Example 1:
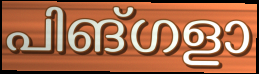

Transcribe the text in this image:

പിങ്ഗളാ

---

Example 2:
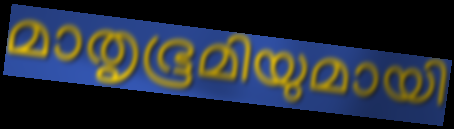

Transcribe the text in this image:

മാതൃഭൂമിയുമായി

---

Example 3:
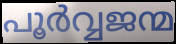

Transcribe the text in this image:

പൂർവ്വജന്മ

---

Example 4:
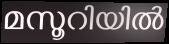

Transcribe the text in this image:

മസൂറിയിൽ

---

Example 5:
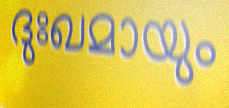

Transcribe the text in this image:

ദുഃഖമായും